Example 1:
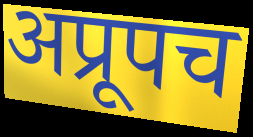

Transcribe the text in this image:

अप्रूपच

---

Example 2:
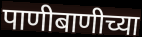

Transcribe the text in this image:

पाणीबाणीच्या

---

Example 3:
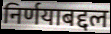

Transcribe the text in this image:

निर्णयाबद्दल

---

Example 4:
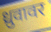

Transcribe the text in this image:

ध्रुवावर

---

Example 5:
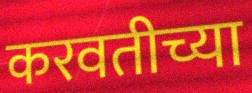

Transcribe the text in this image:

करवतीच्या